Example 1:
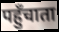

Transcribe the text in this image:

पहुँचाता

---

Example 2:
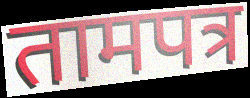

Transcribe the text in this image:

तामपत्र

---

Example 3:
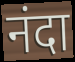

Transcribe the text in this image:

नंदा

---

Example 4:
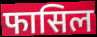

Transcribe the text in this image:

फासिल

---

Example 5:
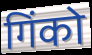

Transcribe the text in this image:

गिंको